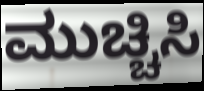
ಮುಚ್ಚಿಸಿ